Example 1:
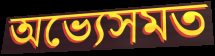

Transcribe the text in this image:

অভ্যেসমত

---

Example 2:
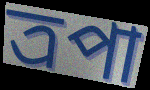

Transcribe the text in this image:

ত্রপা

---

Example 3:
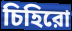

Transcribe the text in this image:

চিহিরো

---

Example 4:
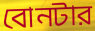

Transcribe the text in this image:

বোনটার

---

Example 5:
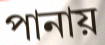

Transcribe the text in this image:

পানায়